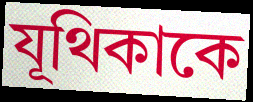
যূথিকাকে